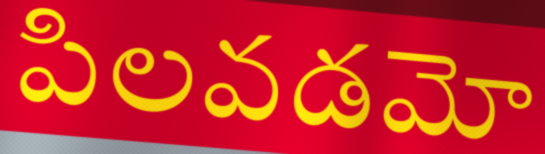
పిలవడమో